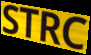
STRC